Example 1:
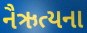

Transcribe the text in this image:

નૈઋત્યના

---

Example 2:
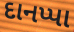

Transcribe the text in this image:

દાનપ્પા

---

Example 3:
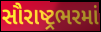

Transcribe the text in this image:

સૌરાષ્ટ્રભરમાં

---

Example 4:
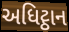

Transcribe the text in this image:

અધિટ્ઠાન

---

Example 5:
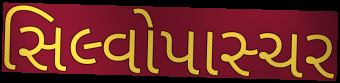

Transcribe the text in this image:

સિલ્વોપાસ્ચર